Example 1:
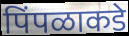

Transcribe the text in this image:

पिंपळाकडे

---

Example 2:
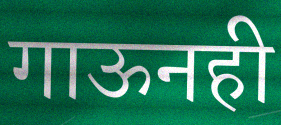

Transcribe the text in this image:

गाऊनही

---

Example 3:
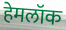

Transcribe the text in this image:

हेमलॉक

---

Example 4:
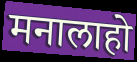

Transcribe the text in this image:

मनालाहो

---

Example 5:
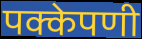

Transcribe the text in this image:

पक्केपणी